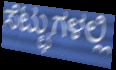
ಸೆಟ್ಟುಗಳಲ್ಲಿ